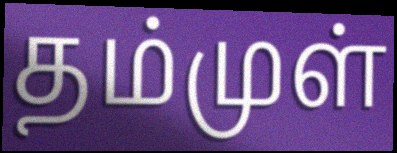
தம்முள்